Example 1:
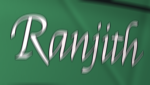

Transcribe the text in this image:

Ranjith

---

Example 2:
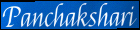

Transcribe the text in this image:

Panchakshari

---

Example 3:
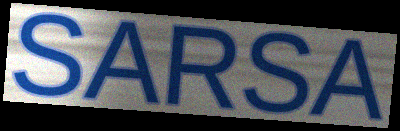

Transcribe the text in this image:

SARSA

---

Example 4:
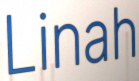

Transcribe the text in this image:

Linah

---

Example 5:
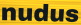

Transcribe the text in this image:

nudus